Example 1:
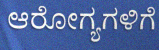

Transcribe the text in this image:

ಆರೋಗ್ಯಗಳಿಗೆ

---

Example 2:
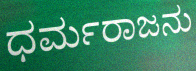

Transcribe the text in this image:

ಧರ್ಮರಾಜನು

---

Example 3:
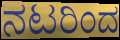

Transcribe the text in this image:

ನಟರಿಂದ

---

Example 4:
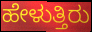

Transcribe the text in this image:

ಹೇಳುತ್ತಿರು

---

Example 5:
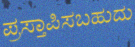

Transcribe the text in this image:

ಪ್ರಸ್ತಾಪಿಸಬಹುದು